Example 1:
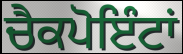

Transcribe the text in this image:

ਚੈਕਪੋਇੰਟਾਂ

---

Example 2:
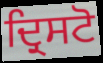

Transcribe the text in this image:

ਦ੍ਰਿਸਟੋ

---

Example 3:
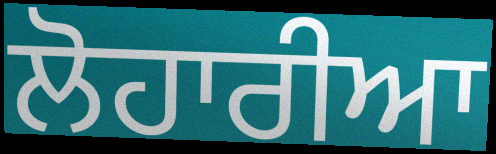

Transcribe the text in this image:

ਲੋਹਾਰੀਆ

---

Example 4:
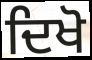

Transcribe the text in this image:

ਦਿਖੋ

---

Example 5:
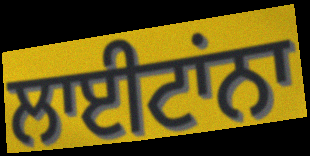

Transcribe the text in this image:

ਲਾਈਟਾਂਨਾ